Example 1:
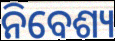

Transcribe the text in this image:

ନିବେଶ୍ୟ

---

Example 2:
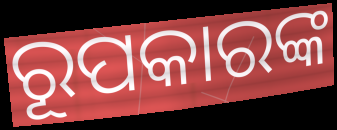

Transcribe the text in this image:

ରୂପକାରଙ୍କ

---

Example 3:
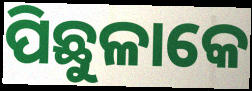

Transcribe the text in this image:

ପିଛୁଳାକେ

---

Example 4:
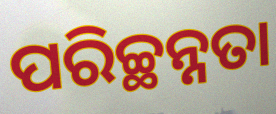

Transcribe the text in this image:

ପରିଚ୍ଛନ୍ନତା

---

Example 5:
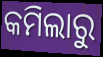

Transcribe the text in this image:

କମିଲାରୁ